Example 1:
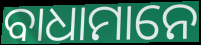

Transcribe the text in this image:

ବାଧାମାନେ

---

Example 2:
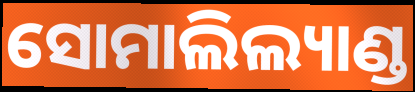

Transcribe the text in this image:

ସୋମାଲିଲ୍ୟାଣ୍ଡ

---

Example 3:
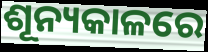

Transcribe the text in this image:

ଶୂନ୍ୟକାଳରେ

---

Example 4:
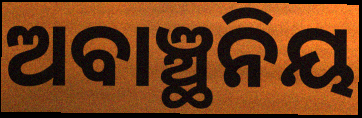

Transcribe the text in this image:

ଅବାଞ୍ଛନିୟ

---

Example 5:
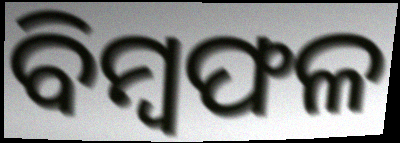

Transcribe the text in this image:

ବିମ୍ୱଫଳ